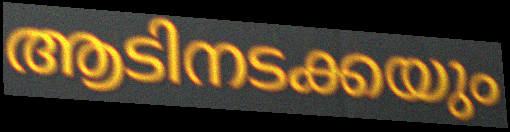
ആടിനടക്കയും